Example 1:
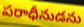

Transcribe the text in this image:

పరాధీనుడను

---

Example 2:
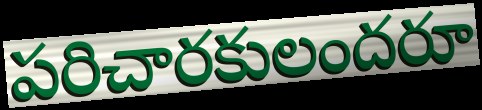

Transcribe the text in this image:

పరిచారకులందరూ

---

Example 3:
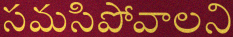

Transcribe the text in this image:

సమసిపోవాలని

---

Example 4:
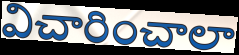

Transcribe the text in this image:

విచారించాలా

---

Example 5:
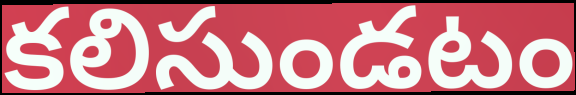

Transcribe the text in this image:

కలిసుండటం